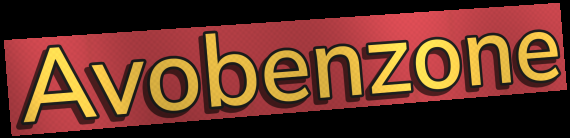
Avobenzone